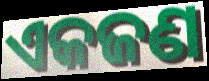
ଏକଜଣ